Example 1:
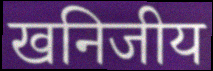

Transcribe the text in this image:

खनिजीय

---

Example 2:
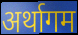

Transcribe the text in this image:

अर्थागम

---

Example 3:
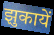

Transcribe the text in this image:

झुकायें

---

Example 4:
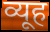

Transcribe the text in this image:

व्यूह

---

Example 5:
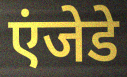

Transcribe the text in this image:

एंजेडे